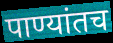
पाण्यांतच